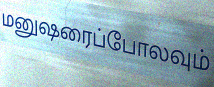
மனுஷரைப்போலவும்